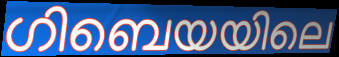
ഗിബെയയിലെ